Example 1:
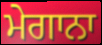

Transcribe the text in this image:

ਮੇਗਾਨਾ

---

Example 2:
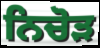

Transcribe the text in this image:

ਨਿਚੋੜ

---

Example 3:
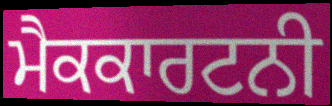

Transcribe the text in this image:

ਮੈਕਕਾਰਟਨੀ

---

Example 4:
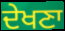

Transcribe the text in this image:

ਦੇਖਣਾ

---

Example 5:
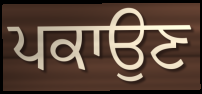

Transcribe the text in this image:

ਪਕਾਉਣ